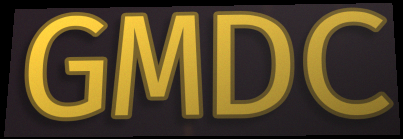
GMDC